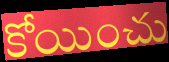
కోయించు